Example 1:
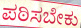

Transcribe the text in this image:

ಪಠಿಸಬೇಕು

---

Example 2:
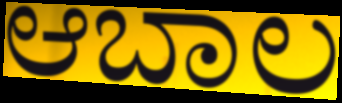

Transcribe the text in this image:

ಆಬಾಲ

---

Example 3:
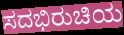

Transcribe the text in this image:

ಸದಭಿರುಚಿಯ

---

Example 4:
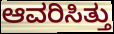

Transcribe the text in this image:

ಆವರಿಸಿತ್ತು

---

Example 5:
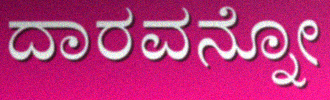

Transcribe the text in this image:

ದಾರವನ್ನೋ